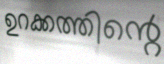
ഉറക്കത്തിന്റെ